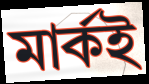
মার্কই